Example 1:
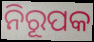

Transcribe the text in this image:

ନିରୂପକ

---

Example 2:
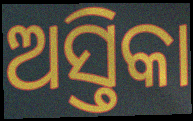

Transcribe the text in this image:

ଅସ୍ତିକା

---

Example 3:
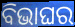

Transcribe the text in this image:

ବିଭାଘର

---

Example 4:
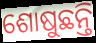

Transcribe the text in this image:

ଶୋଷୁଛନ୍ତି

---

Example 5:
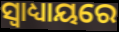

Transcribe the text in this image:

ସ୍ଵାଧ୍ୟାୟରେ